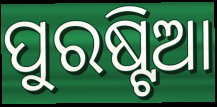
ପୁରଷ୍ଟିଆ